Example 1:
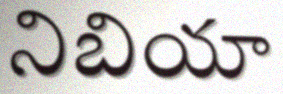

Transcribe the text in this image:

నిబియా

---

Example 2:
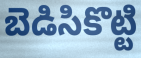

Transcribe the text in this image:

బెడిసికొట్టి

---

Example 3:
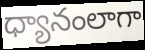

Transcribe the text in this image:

ధ్యానంలాగా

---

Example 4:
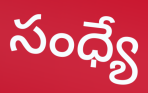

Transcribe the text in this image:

సంధ్యే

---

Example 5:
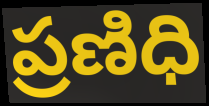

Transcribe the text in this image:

ప్రణిధి